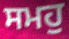
ਸਮਹੁ